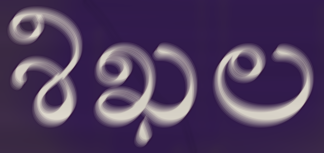
శిఖల